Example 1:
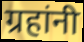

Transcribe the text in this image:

ग्रहांनी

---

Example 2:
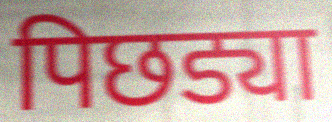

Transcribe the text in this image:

पिछड्या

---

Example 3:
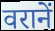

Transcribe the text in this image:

वरानें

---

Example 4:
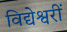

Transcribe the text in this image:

विद्येश्वरीं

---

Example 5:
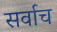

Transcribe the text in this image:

सर्वाच